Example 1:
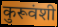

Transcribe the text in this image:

कुरूवंशी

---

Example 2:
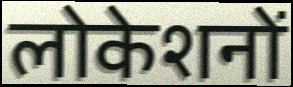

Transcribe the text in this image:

लोकेशनों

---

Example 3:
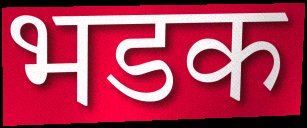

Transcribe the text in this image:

भडक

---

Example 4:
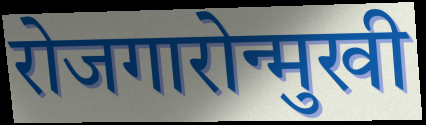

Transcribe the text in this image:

रोजगारोन्मुखी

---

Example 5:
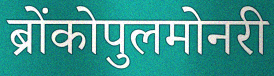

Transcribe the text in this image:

ब्रोंकोपुलमोनरी